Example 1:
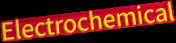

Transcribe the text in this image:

Electrochemical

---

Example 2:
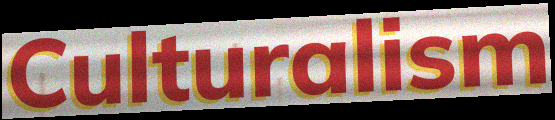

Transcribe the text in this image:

Culturalism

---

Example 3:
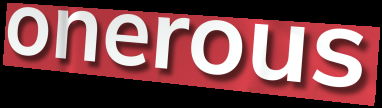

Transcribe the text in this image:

onerous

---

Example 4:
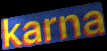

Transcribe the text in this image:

karna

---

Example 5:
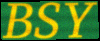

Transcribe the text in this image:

BSY